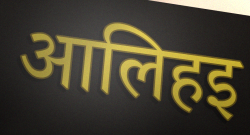
आलिहइ